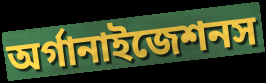
অর্গানাইজেশনস